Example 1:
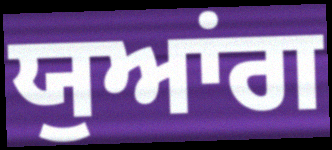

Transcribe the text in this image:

ਯੁਆਂਗ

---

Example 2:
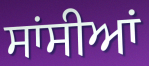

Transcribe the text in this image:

ਸਾਂਸੀਆਂ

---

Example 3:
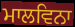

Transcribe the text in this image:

ਮਾਲਵਿਨਾ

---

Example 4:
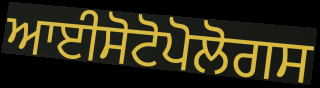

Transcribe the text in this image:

ਆਈਸੋਟੋਪੋਲੋਗਸ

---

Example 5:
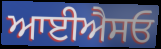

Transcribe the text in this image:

ਆਈਐਸਓ